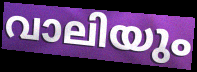
വാലിയും